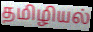
தமிழியல்